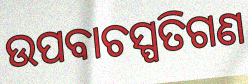
ଉପବାଚସ୍ପତିଗଣ